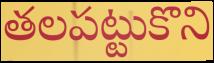
తలపట్టుకొని